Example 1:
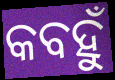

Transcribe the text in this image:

କବହୁଁ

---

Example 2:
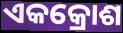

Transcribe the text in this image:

ଏକକ୍ରୋଶ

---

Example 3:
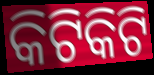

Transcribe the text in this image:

କିଟିକିଟି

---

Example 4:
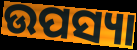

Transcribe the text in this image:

ଉପସ୍ୟା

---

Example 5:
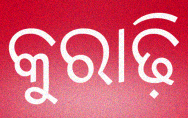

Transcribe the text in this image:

କୁରାଢ଼ି